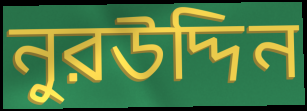
নুরউদ্দিন